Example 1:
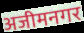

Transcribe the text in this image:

अजीमनगर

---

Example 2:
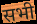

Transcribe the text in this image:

सभी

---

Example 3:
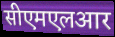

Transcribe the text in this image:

सीएमएलआर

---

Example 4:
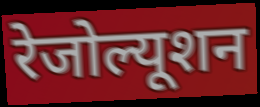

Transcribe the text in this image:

रेजोल्यूशन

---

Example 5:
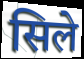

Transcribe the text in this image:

सिले